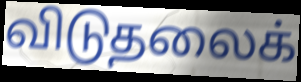
விடுதலைக்